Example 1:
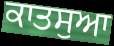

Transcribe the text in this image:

ਕਾਤਸੁਆ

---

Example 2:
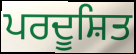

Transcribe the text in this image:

ਪਰਦੂਸ਼ਿਤ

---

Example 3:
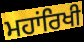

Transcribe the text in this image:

ਮਹਾਂਰਿਖੀ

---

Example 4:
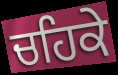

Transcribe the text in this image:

ਚਹਿਕੇ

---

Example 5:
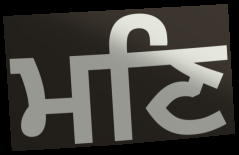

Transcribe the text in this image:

ਮਣਿ